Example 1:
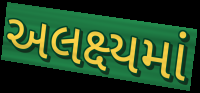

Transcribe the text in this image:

અલક્ષ્યમાં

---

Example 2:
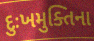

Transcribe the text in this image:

દુઃખમુક્તિના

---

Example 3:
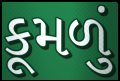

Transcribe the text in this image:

કૂમળું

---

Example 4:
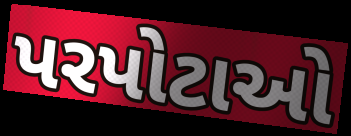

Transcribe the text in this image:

પરપોટાઓ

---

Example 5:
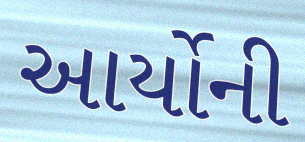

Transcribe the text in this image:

આર્યોની